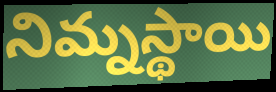
నిమ్నస్థాయి